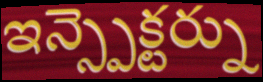
ఇన్స్పెక్టర్ను